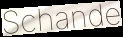
Schande